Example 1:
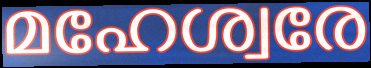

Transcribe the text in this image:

മഹേശ്വരേ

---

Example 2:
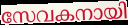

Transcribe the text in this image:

സേവകനായി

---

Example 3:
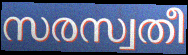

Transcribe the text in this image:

സരസ്വതീ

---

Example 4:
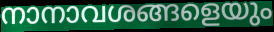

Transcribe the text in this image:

നാനാവശങ്ങളെയും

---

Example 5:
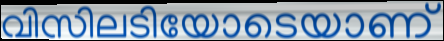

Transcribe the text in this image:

വിസിലടിയോടെയാണ്